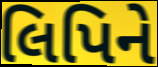
લિપિને